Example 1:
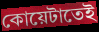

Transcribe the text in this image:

কোয়েটাতেই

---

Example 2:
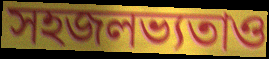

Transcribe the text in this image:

সহজলভ্যতাও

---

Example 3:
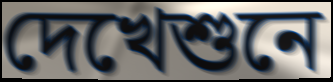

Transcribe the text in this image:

দেখেশুনে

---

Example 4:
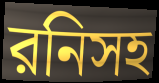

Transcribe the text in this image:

রনিসহ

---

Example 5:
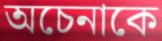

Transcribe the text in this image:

অচেনাকে